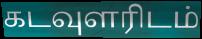
கடவுளரிடம்